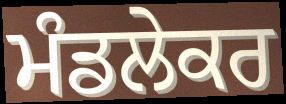
ਮੰਡਲੇਕਰ